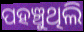
ପହଞ୍ଚୁଥିଲି